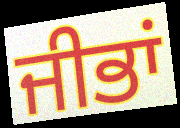
ਜੀਭਾਂ